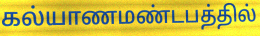
கல்யாணமண்டபத்தில்